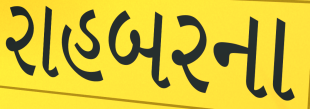
રાહબરના